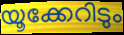
യൂക്കേറിടും